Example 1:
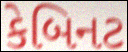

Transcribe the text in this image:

કેબિનટ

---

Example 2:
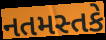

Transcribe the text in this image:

નતમસ્તકે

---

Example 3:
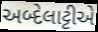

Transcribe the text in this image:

અબ્દેલાટ્ટીએ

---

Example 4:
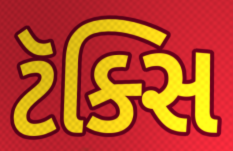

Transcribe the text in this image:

ટૅક્સિ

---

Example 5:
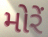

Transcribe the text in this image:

મોરેં